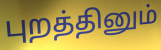
புறத்தினும்